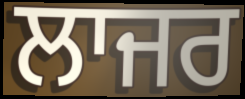
ਲਾਜਰ